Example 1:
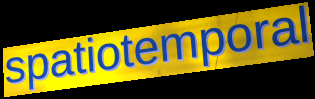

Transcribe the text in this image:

spatiotemporal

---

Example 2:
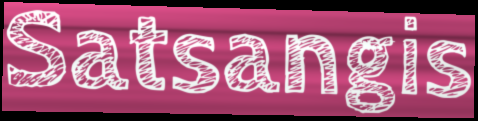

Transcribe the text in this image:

Satsangis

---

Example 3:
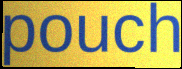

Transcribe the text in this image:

pouch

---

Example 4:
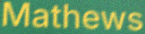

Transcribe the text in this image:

Mathews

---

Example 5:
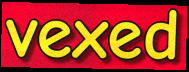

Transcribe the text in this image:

vexed